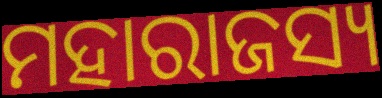
ମହାରାଜସ୍ୟ